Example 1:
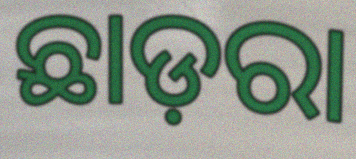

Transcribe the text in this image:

ଛାଡ଼ରା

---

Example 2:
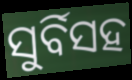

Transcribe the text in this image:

ସୁର୍ବିସହ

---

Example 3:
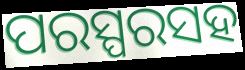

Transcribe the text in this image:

ପରସ୍ପରସହ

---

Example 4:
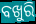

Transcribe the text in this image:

ବଖୁରି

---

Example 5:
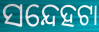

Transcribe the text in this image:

ସନ୍ଦେହଟା